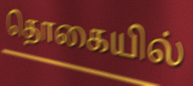
தொகையில்